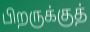
பிறருக்குத்